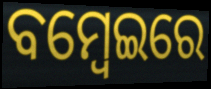
ବମ୍ବେଇରେ